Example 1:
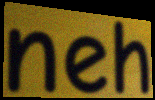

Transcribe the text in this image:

neh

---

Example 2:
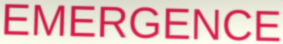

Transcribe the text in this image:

EMERGENCE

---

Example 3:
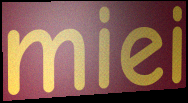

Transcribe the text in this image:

miei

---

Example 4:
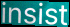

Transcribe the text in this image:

insist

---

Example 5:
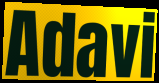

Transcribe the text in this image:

Adavi